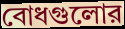
বোধগুলোর